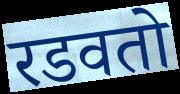
रडवतो